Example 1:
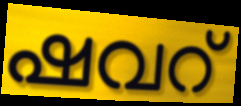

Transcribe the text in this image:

ഷവറ്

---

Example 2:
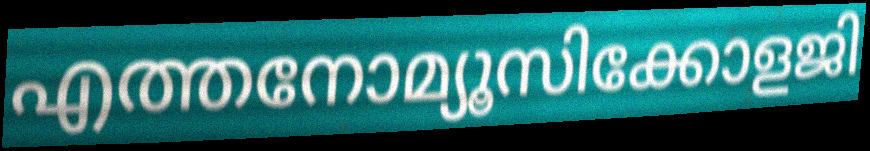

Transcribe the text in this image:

എത്തനോമ്യൂസിക്കോളജി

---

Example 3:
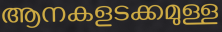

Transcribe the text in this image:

ആനകളടക്കമുള്ള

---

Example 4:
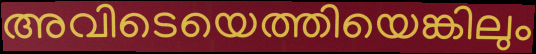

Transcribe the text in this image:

അവിടെയെത്തിയെങ്കിലും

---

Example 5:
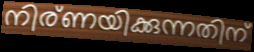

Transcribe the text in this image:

നിര്ണയിക്കുന്നതിന്